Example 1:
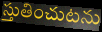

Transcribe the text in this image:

స్తుతించుటను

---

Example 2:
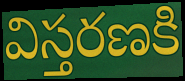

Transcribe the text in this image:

విస్తరణకి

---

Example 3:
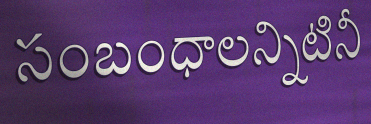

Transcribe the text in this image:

సంబంధాలన్నిటినీ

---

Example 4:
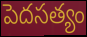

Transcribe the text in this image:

పెదసత్యం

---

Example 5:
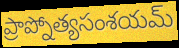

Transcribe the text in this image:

ప్రాప్నోత్యసంశయమ్